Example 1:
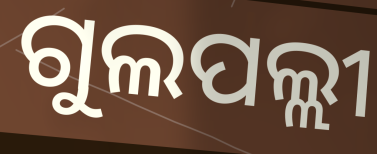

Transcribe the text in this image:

ଗୁଲପଲ୍ଲୀ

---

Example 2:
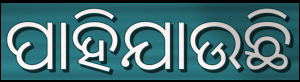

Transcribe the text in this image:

ପାହିଯାଉଛି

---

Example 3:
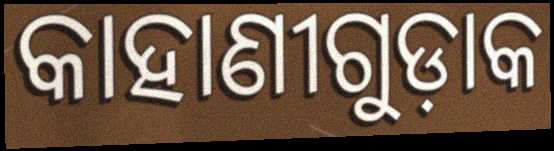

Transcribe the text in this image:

କାହାଣୀଗୁଡ଼ାକ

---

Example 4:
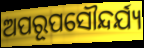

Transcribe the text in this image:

ଅପରୂପସୌନ୍ଦର୍ଯ୍ୟ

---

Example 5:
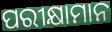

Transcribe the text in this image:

ପରୀକ୍ଷାମାନ